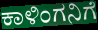
ಕಾಳಿಂಗನಿಗೆ